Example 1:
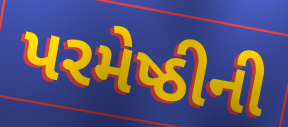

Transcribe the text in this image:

પરમેષ્ઠીની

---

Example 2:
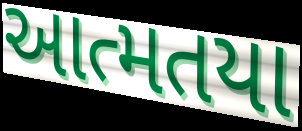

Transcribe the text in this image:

આત્મતયા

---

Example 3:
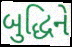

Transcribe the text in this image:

બુદ્ધિને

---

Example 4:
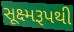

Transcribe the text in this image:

સૂક્ષ્મરૂપથી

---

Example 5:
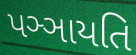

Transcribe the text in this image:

પઞ્ઞાયતિ